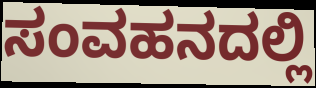
ಸಂವಹನದಲ್ಲಿ